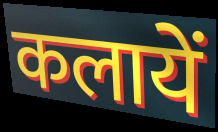
कलायें